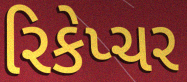
રિકેપ્ચર